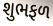
શુભફળ